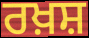
ਰਖ਼ਸ਼